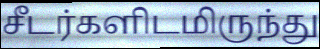
சீடர்களிடமிருந்து